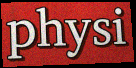
physi